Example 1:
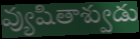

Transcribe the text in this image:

వ్యుషితాశ్వుడు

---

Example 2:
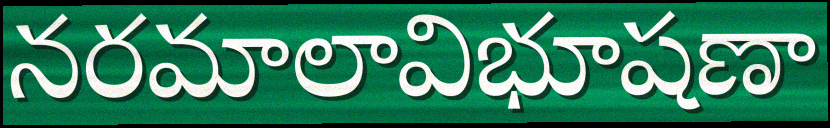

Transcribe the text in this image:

నరమాలావిభూషణా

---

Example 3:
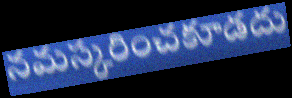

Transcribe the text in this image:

నమస్కరించకూడదు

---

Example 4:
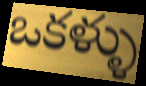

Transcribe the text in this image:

ఒకళ్ళు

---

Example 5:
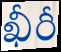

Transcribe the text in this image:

ఖీరీ